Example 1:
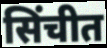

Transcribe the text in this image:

सिंचीत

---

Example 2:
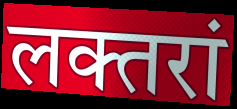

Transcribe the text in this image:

लक्तरां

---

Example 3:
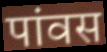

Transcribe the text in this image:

पांवस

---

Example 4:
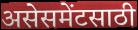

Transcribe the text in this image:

असेसमेंटसाठी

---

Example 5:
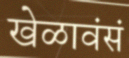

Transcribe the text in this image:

खेळावंसं